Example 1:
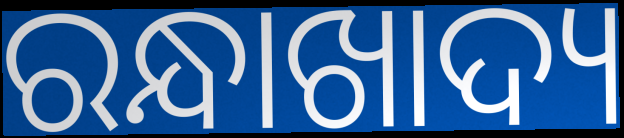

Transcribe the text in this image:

ରନ୍ଧାଖାଦ୍ୟ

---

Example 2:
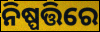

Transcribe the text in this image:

ନିଷ୍ପତ୍ତିରେ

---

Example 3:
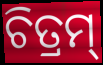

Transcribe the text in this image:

ଚିତ୍ରମ୍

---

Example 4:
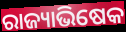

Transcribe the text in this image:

ରାଜ୍ୟାଭିଷେକ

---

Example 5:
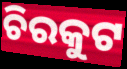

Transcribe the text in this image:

ଚିରକୁଟ